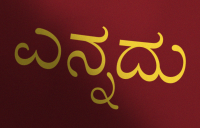
ಎನ್ನದು